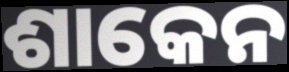
ଶାକେନ